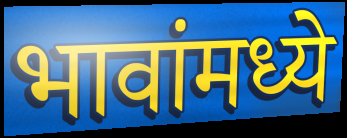
भावांमध्ये